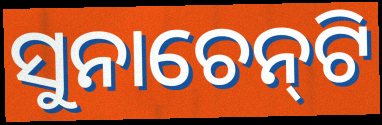
ସୁନାଚେନ୍‍ଟି